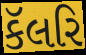
કૅલરિ